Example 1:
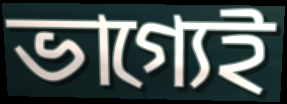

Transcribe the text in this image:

ভাগ্যেই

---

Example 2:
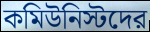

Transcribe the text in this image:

কমিউনিস্টদের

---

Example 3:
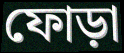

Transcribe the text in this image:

ফোড়া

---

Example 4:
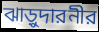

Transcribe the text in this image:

ঝাড়ুদারনীর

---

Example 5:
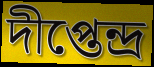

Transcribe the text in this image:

দীপ্তেন্দ্র